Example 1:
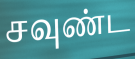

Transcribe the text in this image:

சவுண்ட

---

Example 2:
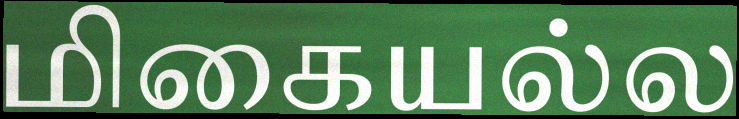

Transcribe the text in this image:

மிகையல்ல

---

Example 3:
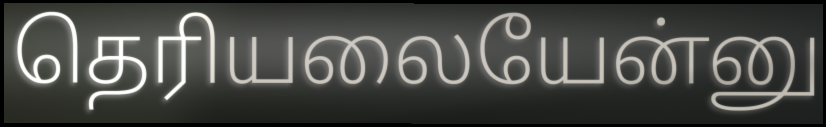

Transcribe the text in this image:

தெரியலையேன்னு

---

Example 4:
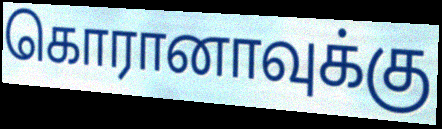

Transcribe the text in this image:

கொரானாவுக்கு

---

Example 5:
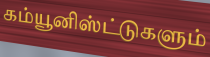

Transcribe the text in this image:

கம்யூனிஸ்ட்டுகளும்